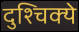
दुश्चिक्ये